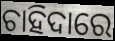
ଚାହିଦାରେ